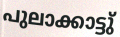
പുലാക്കാട്ടു്